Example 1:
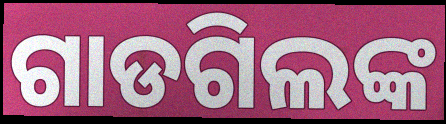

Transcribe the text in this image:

ଗାଡଗିଲଙ୍କ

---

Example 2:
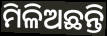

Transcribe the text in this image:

ମିଳିଅଛନ୍ତି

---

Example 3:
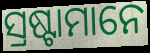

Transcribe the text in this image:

ସ୍ରଷ୍ଟାମାନେ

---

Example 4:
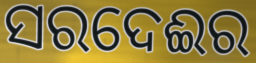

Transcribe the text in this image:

ସରଦେଈର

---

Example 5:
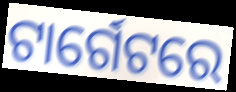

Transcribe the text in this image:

ଟାର୍ଗେଟରେ